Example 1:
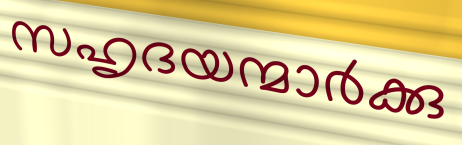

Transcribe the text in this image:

സഹൃദയന്മാർക്കു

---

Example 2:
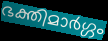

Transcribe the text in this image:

ഭക്തിമാർഗ്ഗം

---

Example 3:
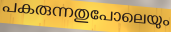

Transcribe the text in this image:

പകരുന്നതുപോലെയും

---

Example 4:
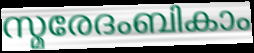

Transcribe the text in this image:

സ്മരേദംബികാം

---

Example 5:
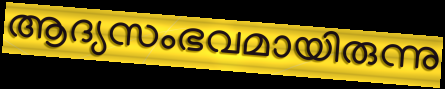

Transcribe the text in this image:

ആദ്യസംഭവമായിരുന്നു